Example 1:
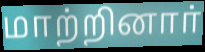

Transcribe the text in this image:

மாற்றினார்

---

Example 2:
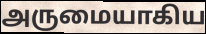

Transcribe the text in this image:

அருமையாகிய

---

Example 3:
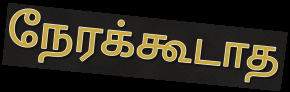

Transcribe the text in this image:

நேரக்கூடாத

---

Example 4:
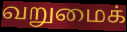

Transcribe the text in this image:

வறுமைக்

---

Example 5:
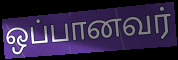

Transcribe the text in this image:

ஒப்பானவர்